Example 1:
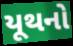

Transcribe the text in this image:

યૂથનો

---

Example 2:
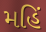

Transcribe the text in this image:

મહિં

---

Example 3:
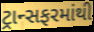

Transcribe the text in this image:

ટ્રાન્સફરમાંથી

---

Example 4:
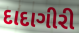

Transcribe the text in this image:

દાદાગીરી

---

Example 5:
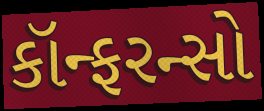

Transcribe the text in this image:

કૉન્ફરન્સો